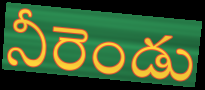
నీరెండు